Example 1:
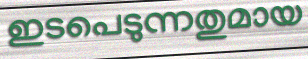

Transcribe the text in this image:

ഇടപെടുന്നതുമായ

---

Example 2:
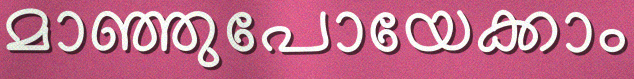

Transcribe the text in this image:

മാഞ്ഞുപോയേക്കാം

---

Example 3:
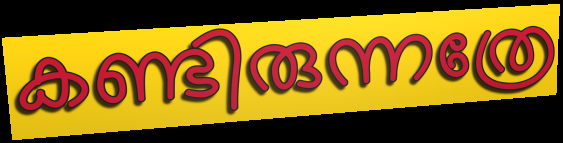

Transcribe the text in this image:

കണ്ടിരുന്നത്രേ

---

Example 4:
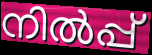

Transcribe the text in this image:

നിൽപ്പ്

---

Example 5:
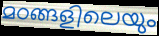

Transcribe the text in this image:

മഠങ്ങളിലെയും